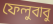
ফেলুবাবু